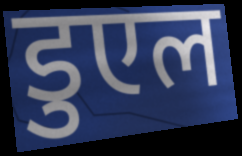
डुएल